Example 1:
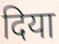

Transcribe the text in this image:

दिया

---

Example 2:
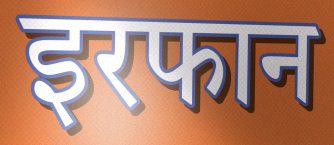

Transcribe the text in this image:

इरफान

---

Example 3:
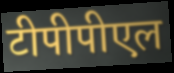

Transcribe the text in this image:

टीपीपीएल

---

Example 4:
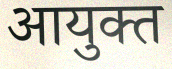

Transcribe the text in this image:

आयुक्त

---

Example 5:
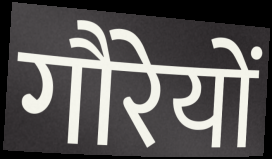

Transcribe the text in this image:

गौरेयों